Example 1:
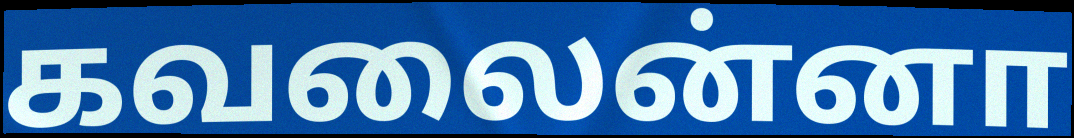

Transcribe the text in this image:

கவலைன்னா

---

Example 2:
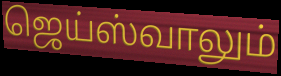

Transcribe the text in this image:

ஜெய்ஸ்வாலும்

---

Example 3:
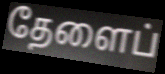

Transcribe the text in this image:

தேளைப்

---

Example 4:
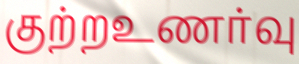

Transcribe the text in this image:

குற்றஉணர்வு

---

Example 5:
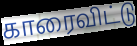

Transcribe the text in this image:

காரைவிட்டு